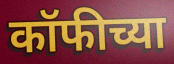
कॉफीच्या